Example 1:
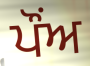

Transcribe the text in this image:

ਪੌਂਅ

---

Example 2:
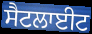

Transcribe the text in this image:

ਸੈਟਲਾਈਟ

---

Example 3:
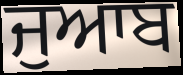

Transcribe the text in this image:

ਜੁਆਬ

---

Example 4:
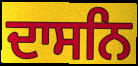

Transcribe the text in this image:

ਦਾਸਨਿ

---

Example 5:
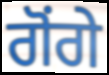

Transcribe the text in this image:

ਗੋਂਗੇ